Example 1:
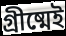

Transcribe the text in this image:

গ্রীষ্মেই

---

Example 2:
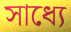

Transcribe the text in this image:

সাধ্যে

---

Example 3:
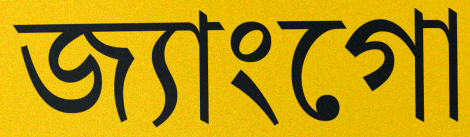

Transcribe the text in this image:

জ্যাংগো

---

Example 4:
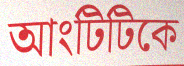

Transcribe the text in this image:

আংটিটিকে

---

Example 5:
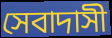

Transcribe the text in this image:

সেবাদাসী